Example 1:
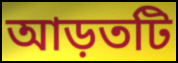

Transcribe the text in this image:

আড়তটি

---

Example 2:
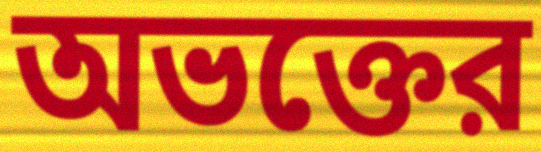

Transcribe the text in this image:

অভক্তের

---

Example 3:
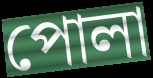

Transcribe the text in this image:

পোলা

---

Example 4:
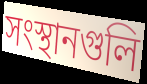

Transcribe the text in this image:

সংস্থানগুলি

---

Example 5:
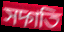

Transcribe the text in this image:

সদ্গতি